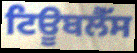
ਟਿਊਬਲੈੱਸ